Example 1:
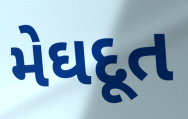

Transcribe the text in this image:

મેઘદૂત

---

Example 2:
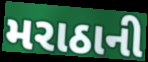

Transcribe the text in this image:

મરાઠાની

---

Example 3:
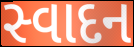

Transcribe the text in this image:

સ્વાદન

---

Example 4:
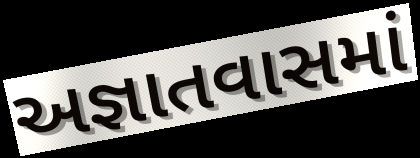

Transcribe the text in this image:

અજ્ઞાતવાસમાં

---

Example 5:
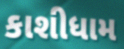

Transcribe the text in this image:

કાશીધામ